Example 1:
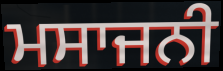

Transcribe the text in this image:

ਮਸਾਜਨੀ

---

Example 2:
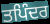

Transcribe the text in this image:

ਤਪਿੰਦਰ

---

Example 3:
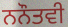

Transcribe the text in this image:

ਨਨੌਤਵੀ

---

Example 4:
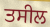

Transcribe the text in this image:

ਤਸੀਲ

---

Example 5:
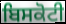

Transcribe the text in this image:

ਬਿਸਕੋਟੀ